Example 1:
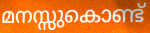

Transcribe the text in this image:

മനസ്സുകൊണ്ട്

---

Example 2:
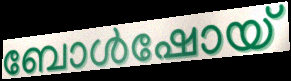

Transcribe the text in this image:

ബോൾഷോയ്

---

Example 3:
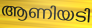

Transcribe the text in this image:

ആണിയടി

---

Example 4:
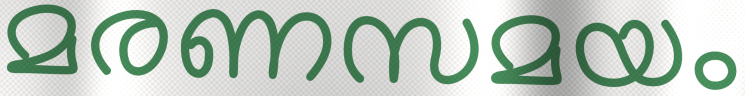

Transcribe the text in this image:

മരണസമയം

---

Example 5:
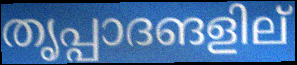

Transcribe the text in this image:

തൃപ്പാദങളില്